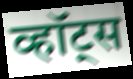
व्हॉट्‌स